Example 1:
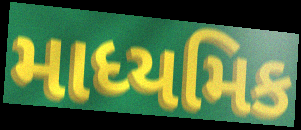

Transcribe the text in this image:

માધ્યમિક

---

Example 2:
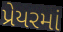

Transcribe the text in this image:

પ્રેયરમાં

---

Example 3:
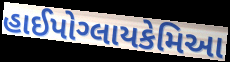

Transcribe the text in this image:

હાઈપોગ્લાયકેમિઆ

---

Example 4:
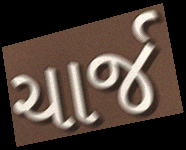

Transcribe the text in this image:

ચાર્જ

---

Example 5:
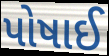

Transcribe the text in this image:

પોષાઈ